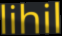
lihil